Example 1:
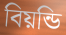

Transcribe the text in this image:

বিয়ন্ডি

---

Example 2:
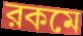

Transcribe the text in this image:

রকমে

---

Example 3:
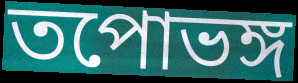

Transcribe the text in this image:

তপোভঙ্গ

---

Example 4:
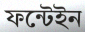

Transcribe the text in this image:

ফন্টেইন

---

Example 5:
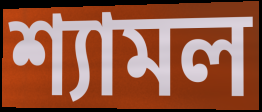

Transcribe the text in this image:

শ্যামল